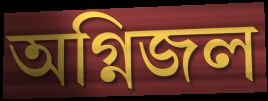
অগ্নিজল